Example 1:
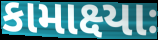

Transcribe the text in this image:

કામાક્ષ્યાઃ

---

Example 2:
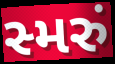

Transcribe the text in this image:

સ્મરું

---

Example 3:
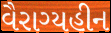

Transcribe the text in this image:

વૈરાગ્યહીન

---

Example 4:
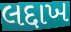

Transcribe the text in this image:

લદ્દાખ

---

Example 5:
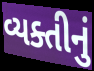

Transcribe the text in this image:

વ્યક્તીનું